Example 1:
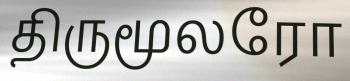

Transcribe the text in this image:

திருமூலரோ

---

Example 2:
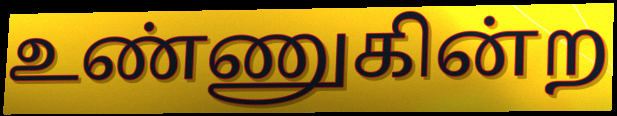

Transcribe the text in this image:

உண்ணுகின்ற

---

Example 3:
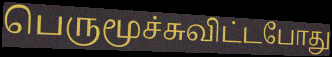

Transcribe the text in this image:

பெருமூச்சுவிட்டபோது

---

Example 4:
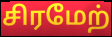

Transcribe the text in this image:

சிரமேற்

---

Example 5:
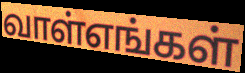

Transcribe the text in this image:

வாள்எங்கள்